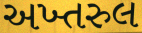
અખ્તરુલ